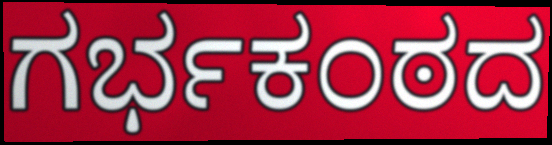
ಗರ್ಭಕಂಠದ